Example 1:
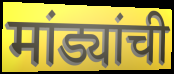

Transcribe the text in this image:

मांड्यांची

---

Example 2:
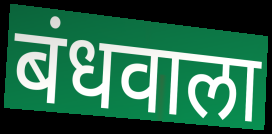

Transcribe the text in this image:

बंधवाला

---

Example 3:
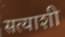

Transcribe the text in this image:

सत्याशी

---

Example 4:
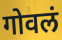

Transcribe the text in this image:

गोवलं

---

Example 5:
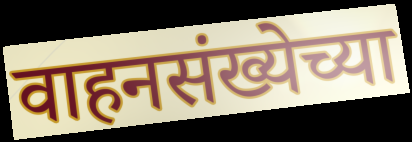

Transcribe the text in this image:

वाहनसंख्येच्या